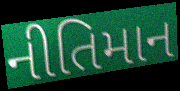
નીતિમાન